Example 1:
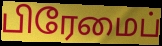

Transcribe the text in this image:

பிரேமைப்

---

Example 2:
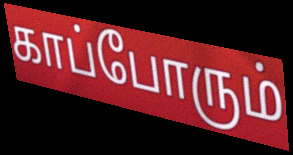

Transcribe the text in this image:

காப்போரும்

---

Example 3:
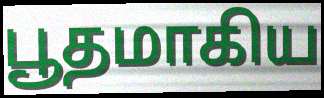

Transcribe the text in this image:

பூதமாகிய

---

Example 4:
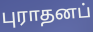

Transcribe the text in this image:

புராதனப்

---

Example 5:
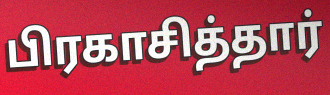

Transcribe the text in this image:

பிரகாசித்தார்